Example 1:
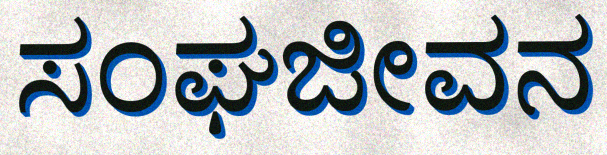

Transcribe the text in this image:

ಸಂಘಜೀವನ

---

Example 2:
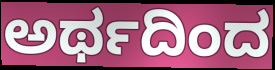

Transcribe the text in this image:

ಅರ್ಥದಿಂದ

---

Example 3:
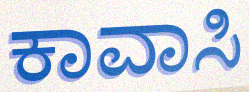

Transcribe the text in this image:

ಕಾವಾಸಿ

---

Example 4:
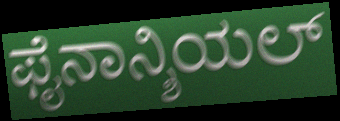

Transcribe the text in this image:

ಫೈನಾನ್ಶಿಯಲ್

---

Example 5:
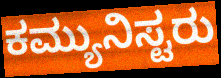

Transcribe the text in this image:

ಕಮ್ಯುನಿಸ್ಟರು